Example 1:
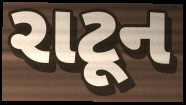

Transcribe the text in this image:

રાટૂન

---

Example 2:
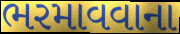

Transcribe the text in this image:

ભરમાવવાના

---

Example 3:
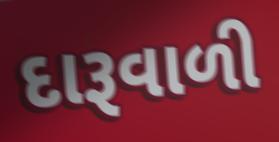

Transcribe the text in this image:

દારૂવાળી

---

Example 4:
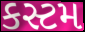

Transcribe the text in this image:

કસ્ટમ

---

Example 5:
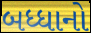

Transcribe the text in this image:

બધ્ધાનો